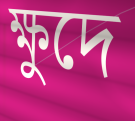
ক্ষুদে